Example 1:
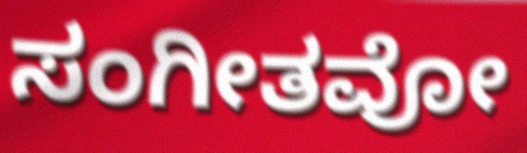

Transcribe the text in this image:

ಸಂಗೀತವೋ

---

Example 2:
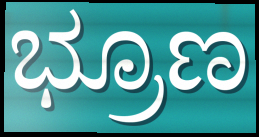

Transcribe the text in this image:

ಭ್ರೂಣ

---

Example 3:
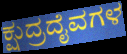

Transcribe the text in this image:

ಕ್ಷುದ್ರದೈವಗಳ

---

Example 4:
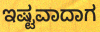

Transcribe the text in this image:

ಇಷ್ಟವಾದಾಗ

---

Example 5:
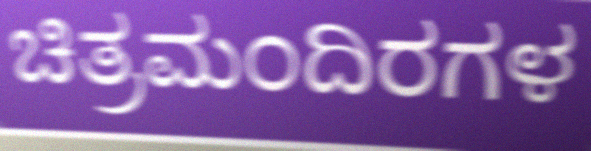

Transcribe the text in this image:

ಚಿತ್ರಮಂದಿರಗಳ